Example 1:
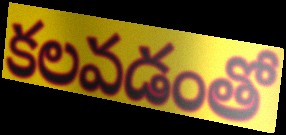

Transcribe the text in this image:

కలవడంతో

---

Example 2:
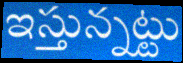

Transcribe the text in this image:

ఇస్తున్నట్టు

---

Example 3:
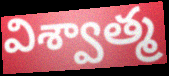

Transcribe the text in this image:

విశ్వాత్మ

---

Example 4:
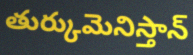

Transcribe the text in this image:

తుర్కుమెనిస్తాన్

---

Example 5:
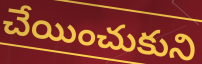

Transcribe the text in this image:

చేయించుకుని